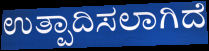
ಉತ್ಪಾದಿಸಲಾಗಿದೆ